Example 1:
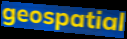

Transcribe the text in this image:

geospatial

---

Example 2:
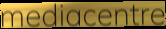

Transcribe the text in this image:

mediacentre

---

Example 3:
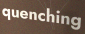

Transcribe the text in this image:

quenching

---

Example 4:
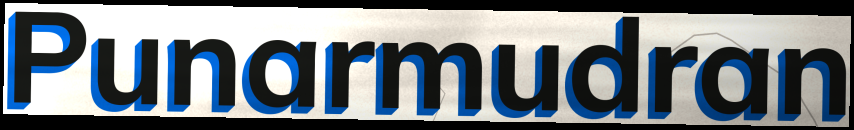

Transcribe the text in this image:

Punarmudran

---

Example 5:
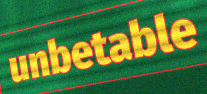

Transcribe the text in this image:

unbetable